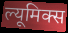
ल्यूमिक्स